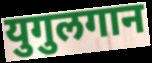
युगुलगान